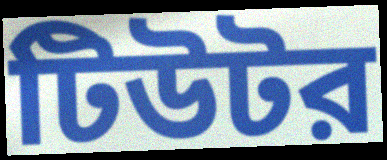
টিউটর